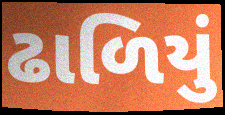
ઢાળિયું